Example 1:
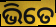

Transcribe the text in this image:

ଭିତେ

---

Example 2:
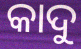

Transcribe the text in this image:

କାଦୁ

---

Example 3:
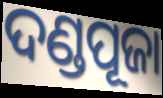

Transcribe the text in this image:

ଦଣ୍ଡପୂଜା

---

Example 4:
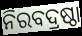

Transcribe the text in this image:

ନିରବଦ୍ରଷ୍ଠା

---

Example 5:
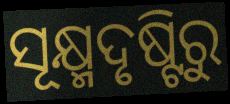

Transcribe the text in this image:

ସୂକ୍ଷ୍ମଦୃଷ୍ଟିରୁ